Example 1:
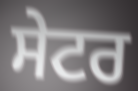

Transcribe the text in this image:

ਸੇਟਰ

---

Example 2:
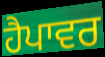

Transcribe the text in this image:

ਹੈਪਾਵਰ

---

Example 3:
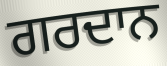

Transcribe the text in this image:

ਗਰਦਾਨ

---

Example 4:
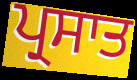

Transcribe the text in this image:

ਪ੍ਰਸਾਤ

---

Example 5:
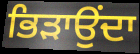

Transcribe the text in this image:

ਭਿੜਾਉਂਦਾ